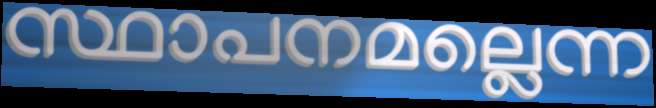
സ്ഥാപനമല്ലെന്ന